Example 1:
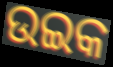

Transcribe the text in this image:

ଉଇକ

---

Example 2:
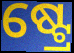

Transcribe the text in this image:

ଷ୍ଟ୍ରେ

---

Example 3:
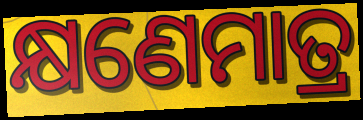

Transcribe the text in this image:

କ୍ଷଣେମାତ୍ର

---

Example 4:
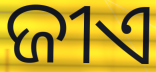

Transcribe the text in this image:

ଜୀଏ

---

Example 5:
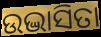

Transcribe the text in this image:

ଉଦ୍ଭାସିତା